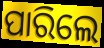
ପାରିଲେ